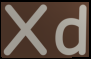
Xd